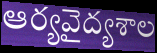
ఆర్యవైద్యశాల